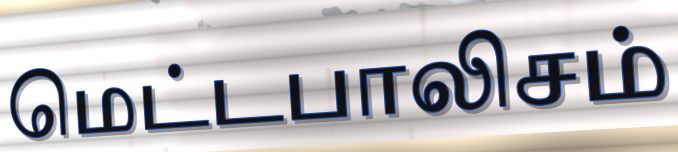
மெட்டபாலிசம்